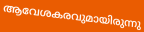
ആവേശകരവുമായിരുന്നു